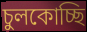
চুলকোচ্ছি